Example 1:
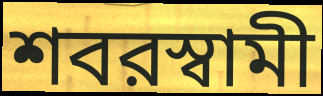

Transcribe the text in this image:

শবরস্বামী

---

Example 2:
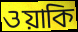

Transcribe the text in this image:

ওয়াকি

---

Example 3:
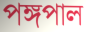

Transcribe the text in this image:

পঙ্গপাল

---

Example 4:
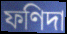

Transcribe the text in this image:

ফণিদা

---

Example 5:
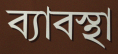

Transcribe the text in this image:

ব্যাবস্থা